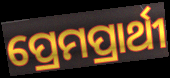
ପ୍ରେମପ୍ରାର୍ଥୀ